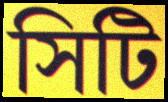
সিটি